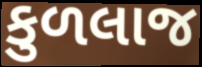
કુળલાજ